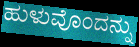
ಹುಳುವೊಂದನ್ನು